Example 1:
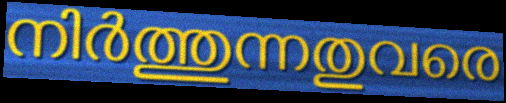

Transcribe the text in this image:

നിർത്തുന്നതുവരെ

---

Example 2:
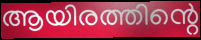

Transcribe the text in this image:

ആയിരത്തിന്റെ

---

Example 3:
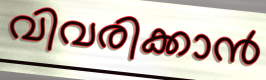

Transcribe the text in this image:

വിവരിക്കാൻ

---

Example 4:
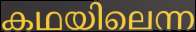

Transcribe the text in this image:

കഥയിലെന്ന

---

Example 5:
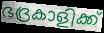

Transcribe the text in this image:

ഭദ്രകാളിക്ക്